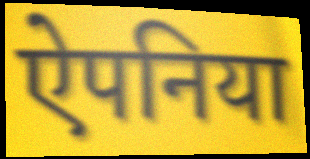
ऐपनिया